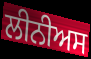
ਲੀਨੀਅਸ